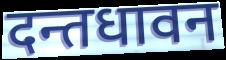
दन्तधावन